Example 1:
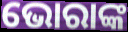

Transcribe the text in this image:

ଭୋରାଙ୍କ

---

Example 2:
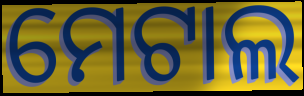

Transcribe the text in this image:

ମେଟାଲ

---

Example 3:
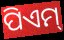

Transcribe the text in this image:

ପିଏମ୍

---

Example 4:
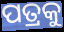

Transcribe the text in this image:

ପତ୍ରକୁ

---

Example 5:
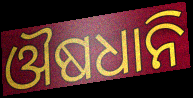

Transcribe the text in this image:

ଔଷଧାନି